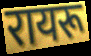
रायरू